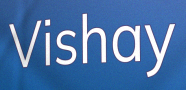
Vishay